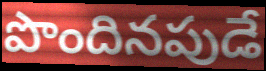
పొందినపుడే